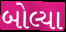
બોલ્યા